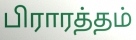
பிராரத்தம்